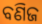
ବଣିଜ